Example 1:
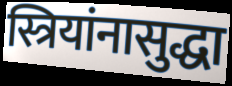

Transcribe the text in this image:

स्त्रियांनासुद्धा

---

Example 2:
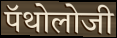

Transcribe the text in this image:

पॅथोलोजी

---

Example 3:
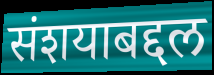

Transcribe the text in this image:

संशयाबद्दल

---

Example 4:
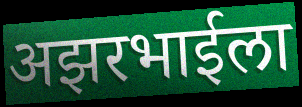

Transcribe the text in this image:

अझरभाईला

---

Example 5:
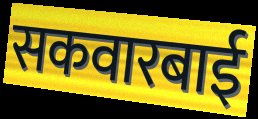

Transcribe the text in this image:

सकवारबाई